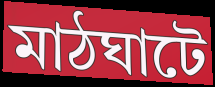
মাঠঘাটে